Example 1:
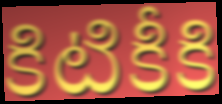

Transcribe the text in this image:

కిటికీకి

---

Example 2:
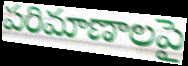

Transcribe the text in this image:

పరిమాణాలపై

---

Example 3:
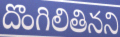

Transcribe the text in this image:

దొంగిలితినని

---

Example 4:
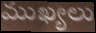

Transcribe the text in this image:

ముఖ్యలు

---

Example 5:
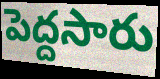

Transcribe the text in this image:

పెద్దసారు